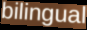
bilingual